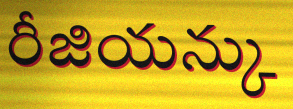
రీజియన్కు